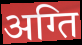
अग्ति